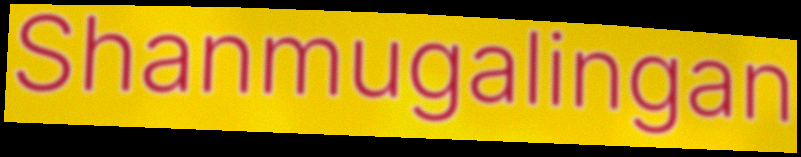
Shanmugalingan